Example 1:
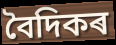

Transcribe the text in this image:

বৈদিকৰ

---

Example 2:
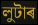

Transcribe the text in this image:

লুটাৰ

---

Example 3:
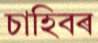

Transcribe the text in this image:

চাহিবৰ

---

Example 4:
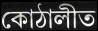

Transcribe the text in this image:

কোঠালীত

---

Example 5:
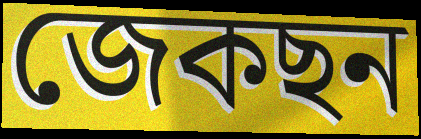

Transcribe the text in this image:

জেকছন